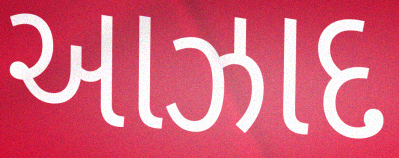
આઝાદ